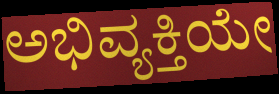
ಅಭಿವ್ಯಕ್ತಿಯೇ